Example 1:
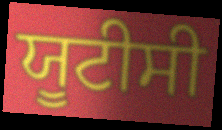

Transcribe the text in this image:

ਯੂਟੀਸੀ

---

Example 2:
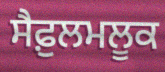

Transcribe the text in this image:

ਸੈਫ਼ੁਲਮਲੂਕ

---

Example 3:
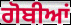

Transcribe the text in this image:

ਗੋਬੀਆਂ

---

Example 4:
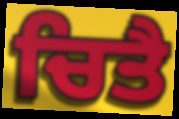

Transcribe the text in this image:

ਚਿਤੈ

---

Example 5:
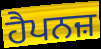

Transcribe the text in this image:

ਹੈਪਨਜ਼